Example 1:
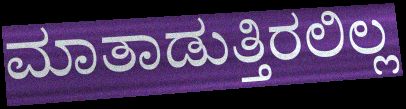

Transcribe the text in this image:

ಮಾತಾಡುತ್ತಿರಲಿಲ್ಲ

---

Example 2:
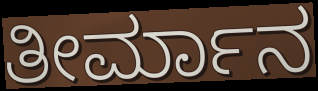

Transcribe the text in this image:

ತೀರ್ಮಾನ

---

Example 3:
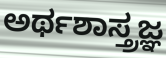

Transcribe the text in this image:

ಅರ್ಥಶಾಸ್ತ್ರಜ್ಞ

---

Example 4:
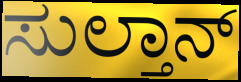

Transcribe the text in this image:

ಸುಲ್ತಾನ್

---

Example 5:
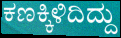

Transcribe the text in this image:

ಕಣಕ್ಕಿಳಿದಿದ್ದು